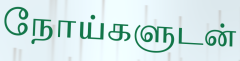
நோய்களுடன்